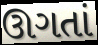
ઊગતાં